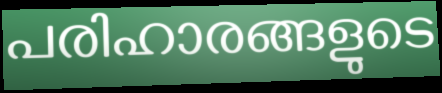
പരിഹാരങ്ങളുടെ